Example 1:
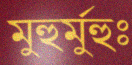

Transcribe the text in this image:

মুহুর্মুহুঃ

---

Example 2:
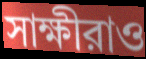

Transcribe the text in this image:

সাক্ষীরাও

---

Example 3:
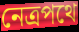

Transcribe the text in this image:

নেত্রপথে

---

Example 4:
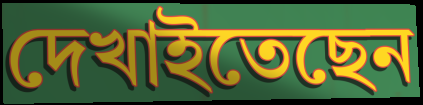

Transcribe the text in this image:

দেখাইতেছেন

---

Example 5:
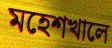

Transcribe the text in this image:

মহেশখালে